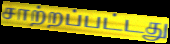
சாற்றப்பட்டது